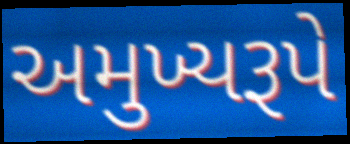
અમુખ્યરૂપે